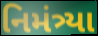
નિમંત્ર્યા